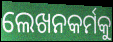
ଲେଖନକର୍ମକୁ